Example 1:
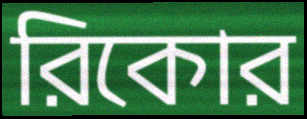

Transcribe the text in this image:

রিকোর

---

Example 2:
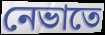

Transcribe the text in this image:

নেভাতে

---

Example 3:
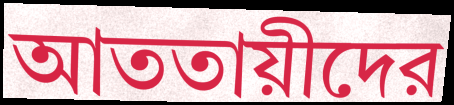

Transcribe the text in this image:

আততায়ীদের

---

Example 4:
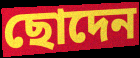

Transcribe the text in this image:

ছোদেন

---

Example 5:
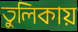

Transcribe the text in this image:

তুলিকায়